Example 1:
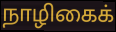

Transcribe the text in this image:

நாழிகைக்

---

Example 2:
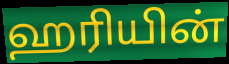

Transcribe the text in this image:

ஹரியின்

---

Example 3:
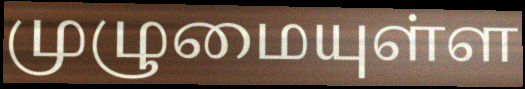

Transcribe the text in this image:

முழுமையுள்ள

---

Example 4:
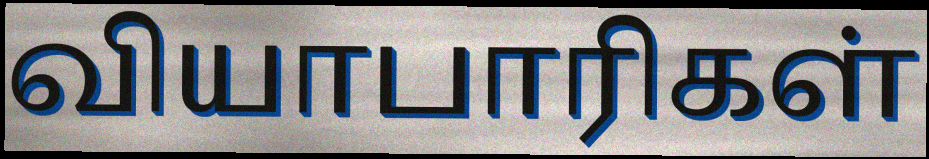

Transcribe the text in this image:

வியாபாரிகள்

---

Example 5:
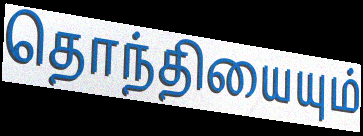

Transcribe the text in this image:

தொந்தியையும்